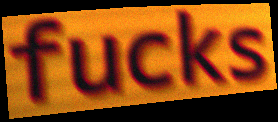
fucks